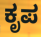
ಕೃಪ